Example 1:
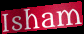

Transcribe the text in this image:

Isham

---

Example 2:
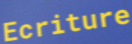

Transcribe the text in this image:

Ecriture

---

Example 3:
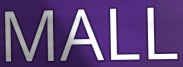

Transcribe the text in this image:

MALL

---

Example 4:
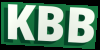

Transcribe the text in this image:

KBB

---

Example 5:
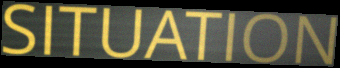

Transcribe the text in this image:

SITUATION